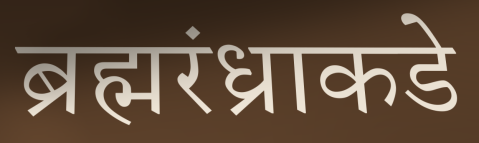
ब्रह्मरंध्राकडे